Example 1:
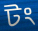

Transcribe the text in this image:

টং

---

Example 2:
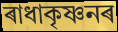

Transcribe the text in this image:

ৰাধাকৃষ্ণনৰ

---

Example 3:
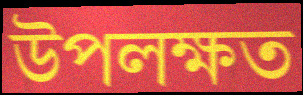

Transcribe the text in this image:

উপলক্ষত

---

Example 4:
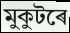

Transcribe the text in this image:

মুকুটৰে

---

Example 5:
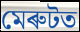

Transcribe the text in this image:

মেৰুটত